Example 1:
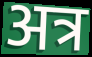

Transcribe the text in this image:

अत्र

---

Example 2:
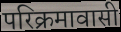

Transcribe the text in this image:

परिक्रमावासी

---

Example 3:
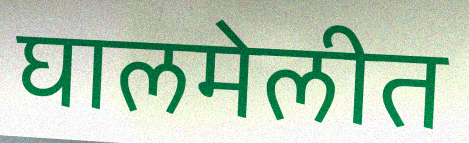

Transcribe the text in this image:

घालमेलीत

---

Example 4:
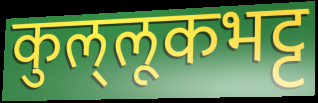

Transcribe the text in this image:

कुल्लूकभट्ट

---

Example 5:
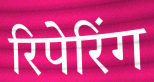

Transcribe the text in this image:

रिपेरिंग